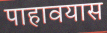
पाहावयास